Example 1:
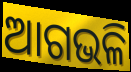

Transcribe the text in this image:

ଆଗଭଳି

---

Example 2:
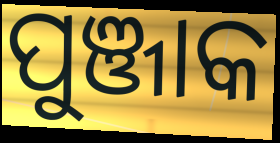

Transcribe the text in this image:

ପୁଞ୍ଜାକ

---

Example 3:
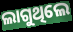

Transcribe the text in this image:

ଲାଗୁଥିଲେ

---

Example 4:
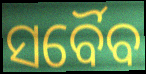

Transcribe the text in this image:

ସର୍ବୈବ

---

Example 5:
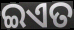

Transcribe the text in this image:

ଇଏତ